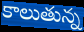
కాలుతున్న